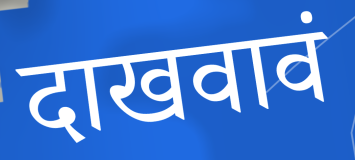
दाखवावं